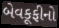
બેવકૂફીનો